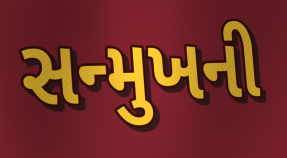
સન્મુખની